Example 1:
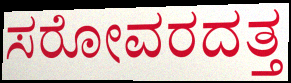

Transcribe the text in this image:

ಸರೋವರದತ್ತ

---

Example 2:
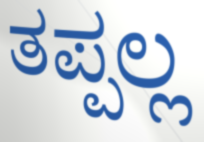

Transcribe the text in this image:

ತಪ್ಪಲ್ಲ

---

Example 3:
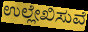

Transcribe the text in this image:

ಉಲ್ಲೇಖಿಸುವೆ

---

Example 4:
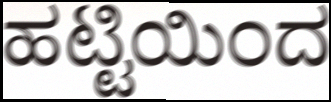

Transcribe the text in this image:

ಹಟ್ಟಿಯಿಂದ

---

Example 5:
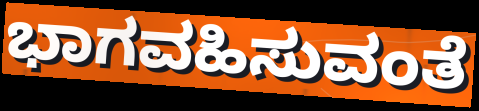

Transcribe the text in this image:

ಭಾಗವಹಿಸುವಂತೆ